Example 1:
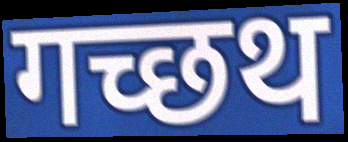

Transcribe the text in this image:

गच्छथ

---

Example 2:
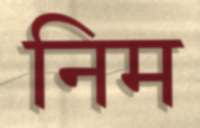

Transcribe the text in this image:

निम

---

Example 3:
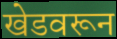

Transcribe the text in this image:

खेडवरून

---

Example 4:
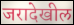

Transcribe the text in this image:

जरादेखील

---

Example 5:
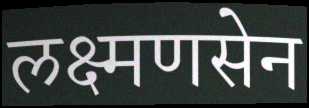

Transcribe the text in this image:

लक्ष्मणसेन